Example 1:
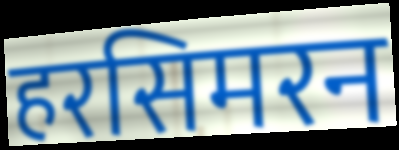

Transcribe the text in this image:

हरसिमरन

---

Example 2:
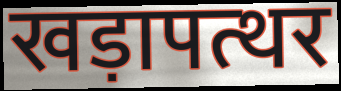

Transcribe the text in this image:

खड़ापत्थर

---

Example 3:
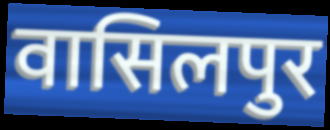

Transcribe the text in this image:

वासिलपुर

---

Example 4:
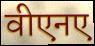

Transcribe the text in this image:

वीएनए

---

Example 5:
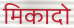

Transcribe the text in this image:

मिकादो